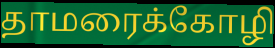
தாமரைக்கோழி